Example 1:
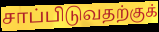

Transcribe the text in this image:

சாப்பிடுவதற்குக்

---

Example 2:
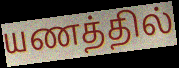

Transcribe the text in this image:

யணத்தில்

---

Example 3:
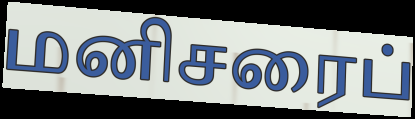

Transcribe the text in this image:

மனிசரைப்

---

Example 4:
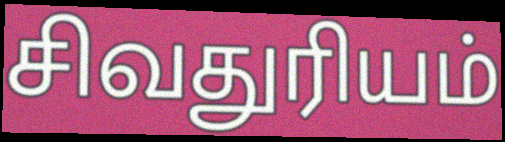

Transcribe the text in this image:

சிவதுரியம்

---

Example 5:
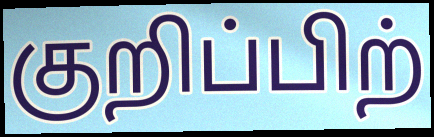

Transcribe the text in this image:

குறிப்பிற்